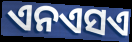
ଏନଏସଏ